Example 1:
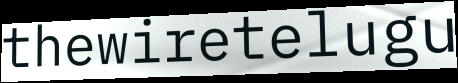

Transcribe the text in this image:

thewiretelugu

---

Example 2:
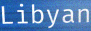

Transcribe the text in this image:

Libyan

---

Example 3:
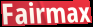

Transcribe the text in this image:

Fairmax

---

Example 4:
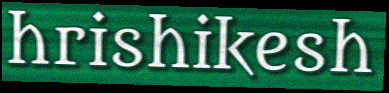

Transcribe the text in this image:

hrishikesh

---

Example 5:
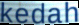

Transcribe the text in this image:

kedah